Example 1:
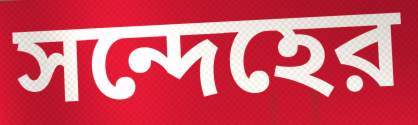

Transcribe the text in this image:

সন্দেহের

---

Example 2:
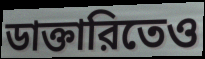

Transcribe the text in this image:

ডাক্তারিতেও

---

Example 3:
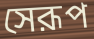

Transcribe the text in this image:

সেরূপ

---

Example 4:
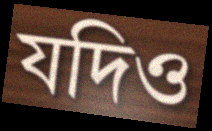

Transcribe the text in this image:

যদিও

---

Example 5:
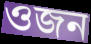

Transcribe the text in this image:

ওজন